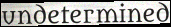
undetermined